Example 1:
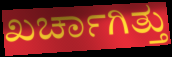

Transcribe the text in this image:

ಖರ್ಚಾಗಿತ್ತು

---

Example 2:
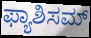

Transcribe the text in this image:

ಫ್ಯಾಶಿಸಮ್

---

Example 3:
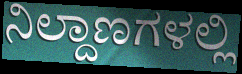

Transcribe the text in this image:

ನಿಲ್ದಾಣಗಳಲ್ಲಿ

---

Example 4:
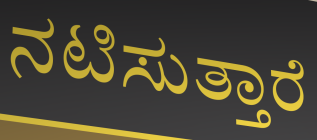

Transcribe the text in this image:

ನಟಿಸುತ್ತಾರೆ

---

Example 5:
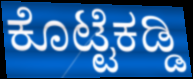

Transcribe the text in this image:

ಕೊಟ್ಟೆಕಡ್ಡಿ